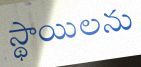
స్థాయిలను